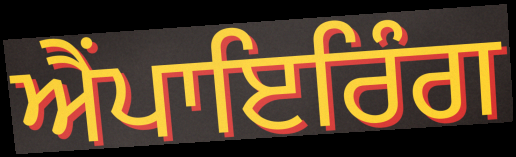
ਐਂਪਾਇਰਿੰਗ